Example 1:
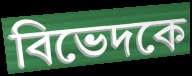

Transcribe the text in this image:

বিভেদকে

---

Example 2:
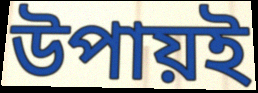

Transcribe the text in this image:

উপায়ই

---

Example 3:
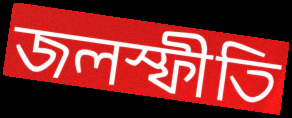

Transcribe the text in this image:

জলস্ফীতি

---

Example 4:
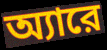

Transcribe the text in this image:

অ্যারে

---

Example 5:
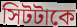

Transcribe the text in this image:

সিটটাকে